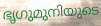
ഭൃഗുമുനിയുടെ